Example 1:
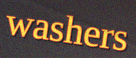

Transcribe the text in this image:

washers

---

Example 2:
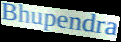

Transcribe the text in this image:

Bhupendra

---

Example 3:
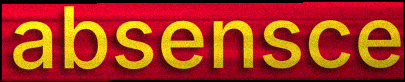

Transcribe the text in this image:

absensce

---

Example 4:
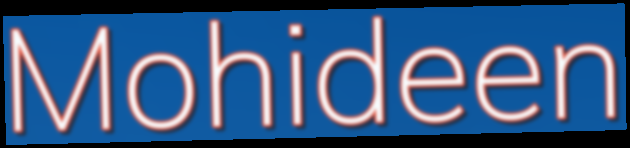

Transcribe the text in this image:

Mohideen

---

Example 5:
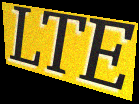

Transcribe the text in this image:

LTE